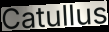
Catullus